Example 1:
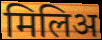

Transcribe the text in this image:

मिलिअ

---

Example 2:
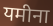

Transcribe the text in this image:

यमीना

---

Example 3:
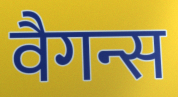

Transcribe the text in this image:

वैगन्स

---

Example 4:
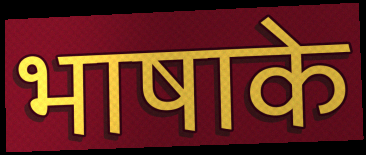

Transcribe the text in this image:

भाषाके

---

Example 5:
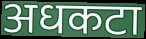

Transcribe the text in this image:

अधकटा